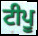
ਟੀਪੂ